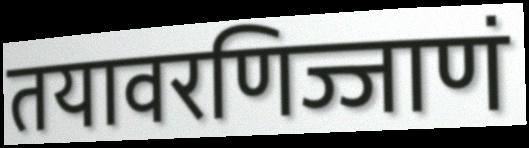
तयावरणिज्जाणं